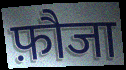
फ़ौजा